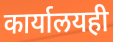
कार्यालयही